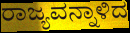
ರಾಜ್ಯವನ್ನಾಳಿದ